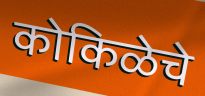
कोकिळेचे